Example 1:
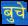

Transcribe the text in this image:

बुचे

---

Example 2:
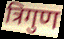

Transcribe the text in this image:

त्रिगुण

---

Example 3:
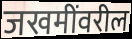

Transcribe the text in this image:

जखमींवरील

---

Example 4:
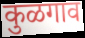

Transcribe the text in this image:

कुळगाव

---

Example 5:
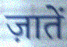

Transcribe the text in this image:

ज़ातें